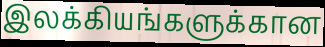
இலக்கியங்களுக்கான